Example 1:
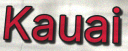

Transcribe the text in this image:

Kauai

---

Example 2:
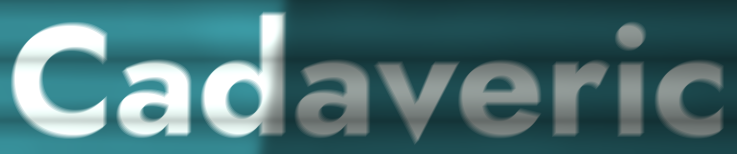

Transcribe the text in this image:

Cadaveric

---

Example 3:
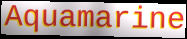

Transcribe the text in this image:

Aquamarine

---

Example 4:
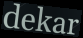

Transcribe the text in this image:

dekar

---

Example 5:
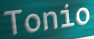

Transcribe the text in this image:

Tonio